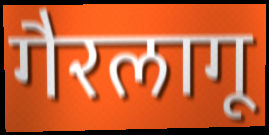
गैरलागू